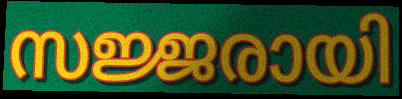
സജ്ജരായി